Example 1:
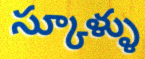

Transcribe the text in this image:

స్కూళ్ళు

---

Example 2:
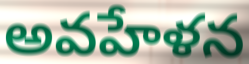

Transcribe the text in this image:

అవహేళన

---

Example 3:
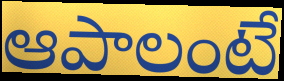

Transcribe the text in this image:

ఆపాలంటే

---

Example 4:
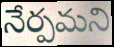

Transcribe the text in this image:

నేర్పమని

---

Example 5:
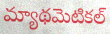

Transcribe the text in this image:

మ్యాథమెటికల్